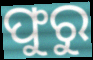
ଫୁରୁ